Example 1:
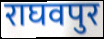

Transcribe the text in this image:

राघवपुर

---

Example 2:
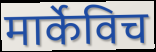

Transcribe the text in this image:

मार्केविच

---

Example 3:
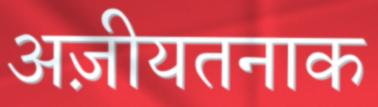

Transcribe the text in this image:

अज़ीयतनाक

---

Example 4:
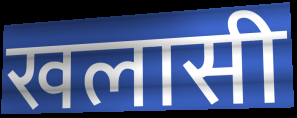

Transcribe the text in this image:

खलासी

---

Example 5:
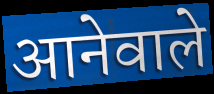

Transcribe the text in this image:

आनेवाले